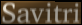
Savitri